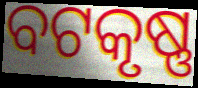
ବଟକୃଷ୍ଣ